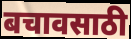
बचावसाठी